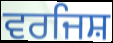
ਵਰਜਿਸ਼